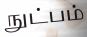
நுட்பம்